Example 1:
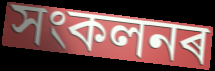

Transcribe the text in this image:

সংকলনৰ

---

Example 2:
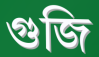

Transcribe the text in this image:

গুজি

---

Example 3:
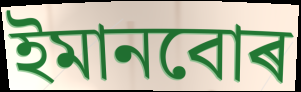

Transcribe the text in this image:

ইমানবোৰ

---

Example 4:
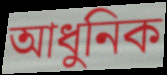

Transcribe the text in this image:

আধুনিক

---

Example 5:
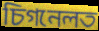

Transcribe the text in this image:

চিগনেলত